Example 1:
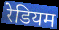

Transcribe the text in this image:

रेडियम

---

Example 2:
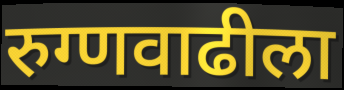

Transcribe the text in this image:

रुग्णवाढीला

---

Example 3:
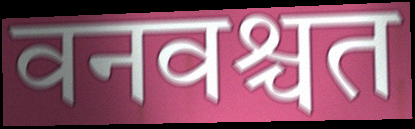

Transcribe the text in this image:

वनवश्चत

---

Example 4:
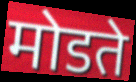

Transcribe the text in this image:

मोडते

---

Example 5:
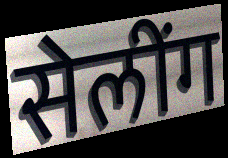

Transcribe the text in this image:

सेलींग